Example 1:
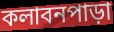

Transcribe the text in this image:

কলাবনপাড়া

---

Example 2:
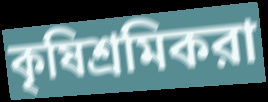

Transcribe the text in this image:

কৃষিশ্রমিকরা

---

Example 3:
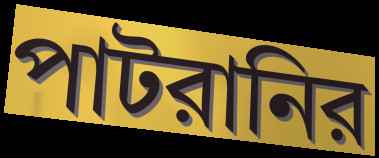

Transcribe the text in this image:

পাটরানির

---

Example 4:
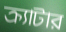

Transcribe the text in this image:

ক্র্যাটার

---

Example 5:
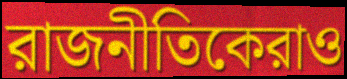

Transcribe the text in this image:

রাজনীতিকেরাও